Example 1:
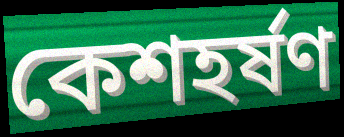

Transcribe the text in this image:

কেশহর্ষণ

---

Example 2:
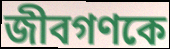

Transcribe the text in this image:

জীবগণকে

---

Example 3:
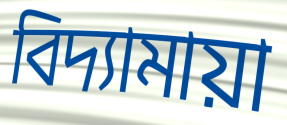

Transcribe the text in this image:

বিদ্যামায়া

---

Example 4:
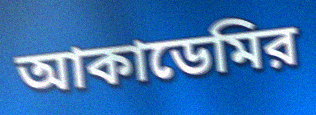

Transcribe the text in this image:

আকাডেমির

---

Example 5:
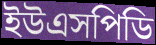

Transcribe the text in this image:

ইউএসপিডি